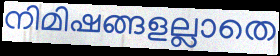
നിമിഷങ്ങളല്ലാതെ